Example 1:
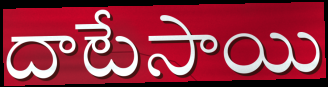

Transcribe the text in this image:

దాటేసాయి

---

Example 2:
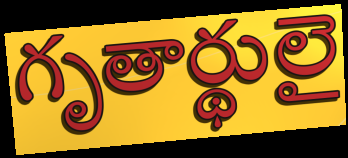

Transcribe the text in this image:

గృతార్థులై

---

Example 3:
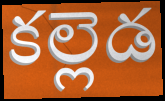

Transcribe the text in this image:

కల్లెడ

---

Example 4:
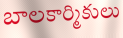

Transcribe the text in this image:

బాలకార్మికులు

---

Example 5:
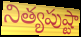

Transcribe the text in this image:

నిత్యపుష్టా